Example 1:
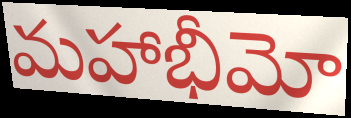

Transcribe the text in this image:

మహాభీమో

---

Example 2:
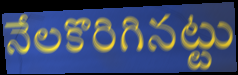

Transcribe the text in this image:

నేలకొరిగినట్టు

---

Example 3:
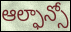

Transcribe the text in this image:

ఆల్ఫాన్సో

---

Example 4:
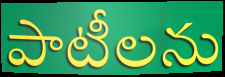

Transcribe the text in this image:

పాటీలను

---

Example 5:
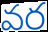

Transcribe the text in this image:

వర